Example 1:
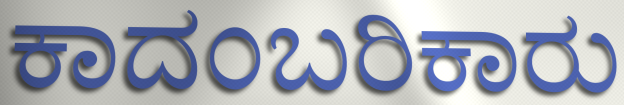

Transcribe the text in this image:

ಕಾದಂಬರಿಕಾರು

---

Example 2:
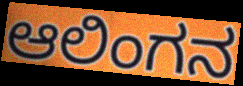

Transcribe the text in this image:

ಆಲಿಂಗನ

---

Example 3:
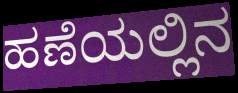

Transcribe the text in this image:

ಹಣೆಯಲ್ಲಿನ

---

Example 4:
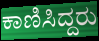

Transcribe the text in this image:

ಕಾಣಿಸಿದ್ದರು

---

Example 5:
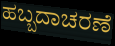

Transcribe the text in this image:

ಹಬ್ಬದಾಚರಣೆ